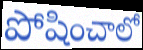
పోషించాలో